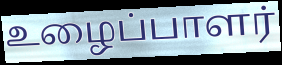
உழைப்பாளர்